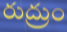
రుద్రుం